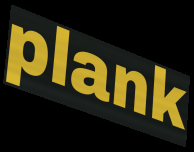
plank